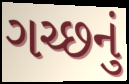
ગચ્છનું